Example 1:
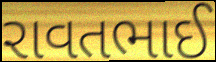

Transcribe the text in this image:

રાવતભાઈ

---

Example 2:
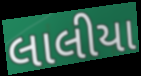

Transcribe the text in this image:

લાલીયા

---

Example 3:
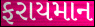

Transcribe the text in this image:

ફરાયમાન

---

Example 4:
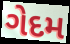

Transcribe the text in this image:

ગેદમ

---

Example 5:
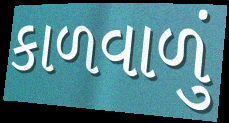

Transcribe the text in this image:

કાળવાળું